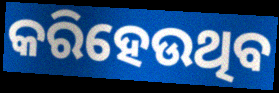
କରିହେଉଥିବ